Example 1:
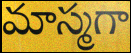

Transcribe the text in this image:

మాస్మగా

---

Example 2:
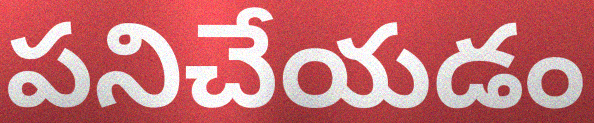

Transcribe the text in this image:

పనిచేయడం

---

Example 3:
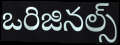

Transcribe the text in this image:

ఒరిజినల్స్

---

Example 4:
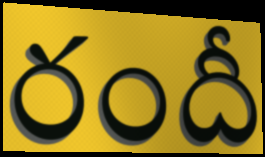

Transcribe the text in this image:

రందీ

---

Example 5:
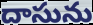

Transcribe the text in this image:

దాసును